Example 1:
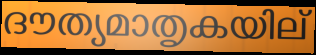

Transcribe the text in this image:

ദൗത്യമാതൃകയില്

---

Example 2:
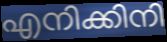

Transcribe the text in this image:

എനിക്കിനി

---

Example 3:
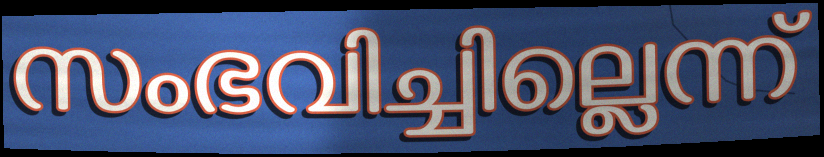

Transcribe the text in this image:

സംഭവിച്ചില്ലെന്ന്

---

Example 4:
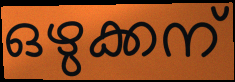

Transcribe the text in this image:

ഒഴുക്കന്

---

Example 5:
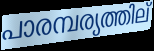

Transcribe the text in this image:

പാരമ്പര്യത്തില്